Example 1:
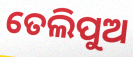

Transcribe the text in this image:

ତେଲିପୁଅ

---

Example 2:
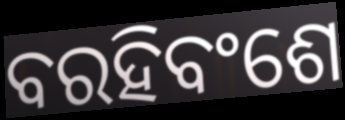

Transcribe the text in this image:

ବରହିବଂଶେ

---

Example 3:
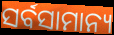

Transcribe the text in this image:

ସର୍ବସାମାନ୍ୟ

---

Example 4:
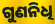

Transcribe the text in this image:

ଗୁଣନିଧି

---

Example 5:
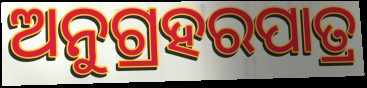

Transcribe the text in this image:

ଅନୁଗ୍ରହରପାତ୍ର